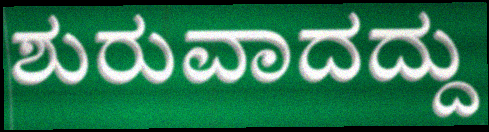
ಶುರುವಾದದ್ದು